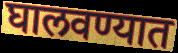
घालवण्यात